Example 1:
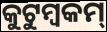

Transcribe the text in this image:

କୁଟୁମ୍ବକମ୍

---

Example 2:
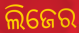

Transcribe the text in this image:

ଲିଜେର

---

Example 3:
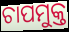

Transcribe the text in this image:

ଚାପମୁକ୍ତ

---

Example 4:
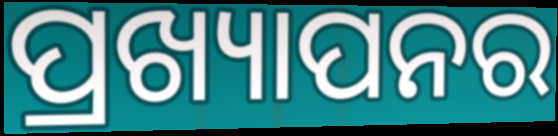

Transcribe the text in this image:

ପ୍ରଖ୍ୟାପନର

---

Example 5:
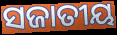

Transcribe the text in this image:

ସଜାତୀୟ